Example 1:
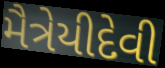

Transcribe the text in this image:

મૈત્રેયીદેવી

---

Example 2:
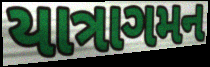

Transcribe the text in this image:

યાત્રાગમન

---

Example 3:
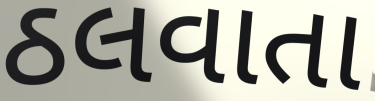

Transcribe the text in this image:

ઠલવાતા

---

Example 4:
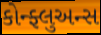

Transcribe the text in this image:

કોન્ફ્લુઅન્સ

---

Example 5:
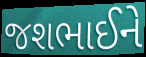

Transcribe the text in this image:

જશભાઈને